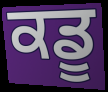
ਕਡੂ